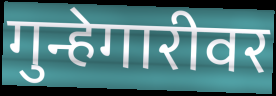
गुन्हेगारीवर